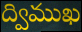
ద్విముఖ